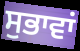
ਸੁਭਾਵਾਂ